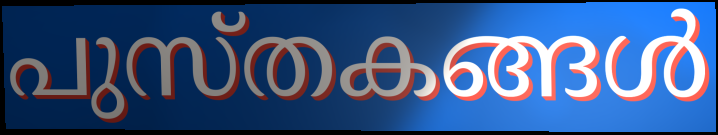
പുസ്തകങ്ങൾ